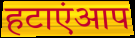
हटाएंआप